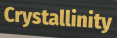
Crystallinity